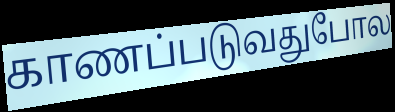
காணப்படுவதுபோல